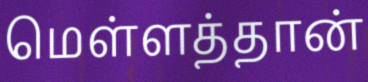
மெள்ளத்தான்